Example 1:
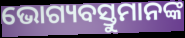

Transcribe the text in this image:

ଭୋଗ୍ୟବସ୍ତୁମାନଙ୍କ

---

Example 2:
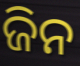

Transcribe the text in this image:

ଜିନ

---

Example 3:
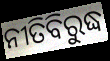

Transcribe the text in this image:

ନୀତିବିରୁଦ୍ଧ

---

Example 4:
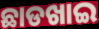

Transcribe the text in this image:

ଛାଡଖାଇ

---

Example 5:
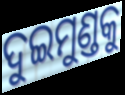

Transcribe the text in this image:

ଦୁଇମୁଣ୍ଡକୁ